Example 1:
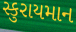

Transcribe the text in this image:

સ્કુરાયમાન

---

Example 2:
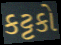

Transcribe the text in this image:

કટ્ટકો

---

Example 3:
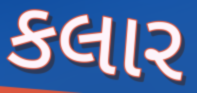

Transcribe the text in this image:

કલાર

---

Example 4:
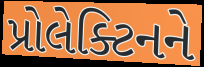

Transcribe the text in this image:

પ્રોલેક્ટિનને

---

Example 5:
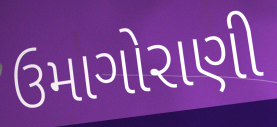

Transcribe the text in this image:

ઉમાગોરાણી